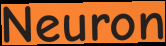
Neuron